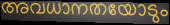
അവധാനതയോടും